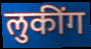
लुकींग